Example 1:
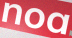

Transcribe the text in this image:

noa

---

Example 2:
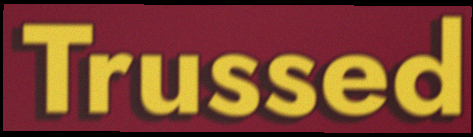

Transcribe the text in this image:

Trussed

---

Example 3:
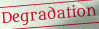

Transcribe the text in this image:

Degradation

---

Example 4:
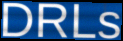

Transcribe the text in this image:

DRLs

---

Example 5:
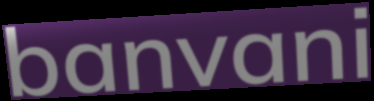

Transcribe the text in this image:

banvani